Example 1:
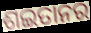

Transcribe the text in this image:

ଶଇତାନର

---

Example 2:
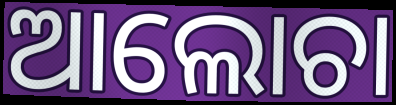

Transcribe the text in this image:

ଆଲୋଚା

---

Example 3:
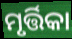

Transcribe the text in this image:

ମୃର୍ତ୍ତିକା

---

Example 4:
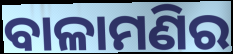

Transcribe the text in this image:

ବାଳାମଣିର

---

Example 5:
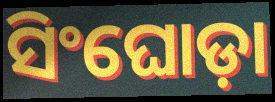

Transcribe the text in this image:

ସିଂଘୋଡ଼ା